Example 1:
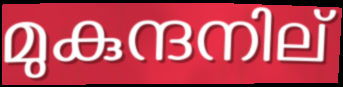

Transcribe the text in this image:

മുകുന്ദനില്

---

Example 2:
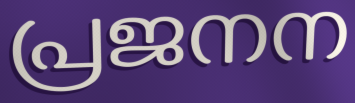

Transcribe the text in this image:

പ്രജനന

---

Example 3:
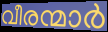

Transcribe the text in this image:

വീരന്മാർ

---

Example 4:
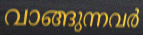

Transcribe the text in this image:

വാങ്ങുന്നവർ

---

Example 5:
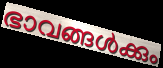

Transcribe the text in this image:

ഭാവങ്ങൾക്കും